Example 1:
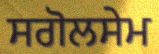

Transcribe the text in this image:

ਸਗੋਲਸੇਮ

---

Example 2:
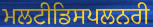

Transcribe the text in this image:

ਮਲਟੀਡਿਸਪਲਨਰੀ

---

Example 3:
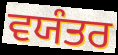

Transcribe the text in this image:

ਵਯੰਤਰ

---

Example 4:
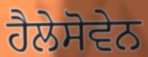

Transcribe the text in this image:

ਹੈਲੇਸੋਵੇਨ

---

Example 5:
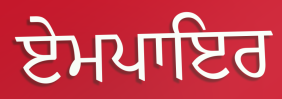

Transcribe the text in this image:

ਏਮਪਾਇਰ